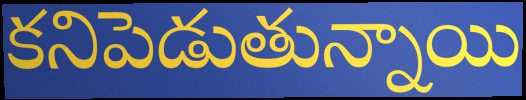
కనిపెడుతున్నాయి